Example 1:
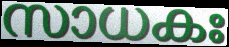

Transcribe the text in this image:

സാധകഃ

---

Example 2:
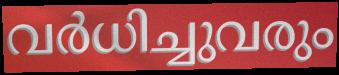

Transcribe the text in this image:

വർധിച്ചുവരും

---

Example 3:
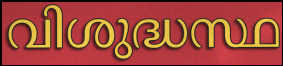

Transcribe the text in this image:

വിശുദ്ധസ്ഥ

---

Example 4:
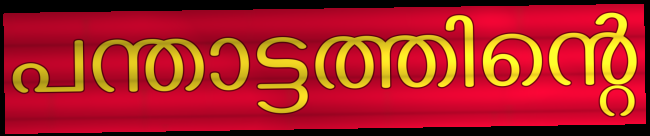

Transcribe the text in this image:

പന്താട്ടത്തിന്റെ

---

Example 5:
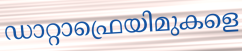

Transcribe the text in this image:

ഡാറ്റാഫ്രെയിമുകളെ